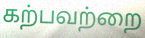
கற்பவற்றை